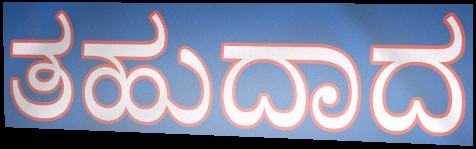
ತಹುದಾದ